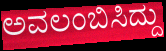
ಅವಲಂಬಿಸಿದ್ದು